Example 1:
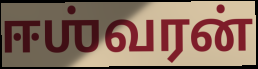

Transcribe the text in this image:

ஈஶ்வரன்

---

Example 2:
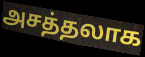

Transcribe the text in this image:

அசத்தலாக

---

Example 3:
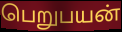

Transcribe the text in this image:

பெறுபயன்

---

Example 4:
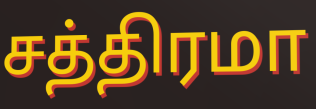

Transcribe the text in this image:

சத்திரமா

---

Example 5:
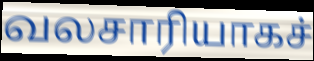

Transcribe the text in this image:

வலசாரியாகச்